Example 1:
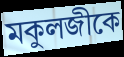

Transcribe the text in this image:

মকুলজীকে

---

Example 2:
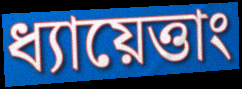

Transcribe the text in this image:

ধ্যায়েত্তাং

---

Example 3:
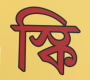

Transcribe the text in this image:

স্কি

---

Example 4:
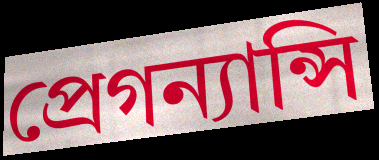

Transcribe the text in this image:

প্রেগন্যান্সি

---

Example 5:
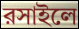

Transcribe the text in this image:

রসাইলে